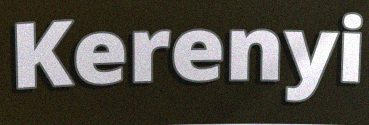
Kerenyi